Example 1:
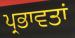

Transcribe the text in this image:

ਪ੍ਰਭਾਵਤਾਂ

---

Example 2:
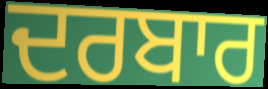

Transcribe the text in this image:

ਦਰਬਾਰ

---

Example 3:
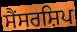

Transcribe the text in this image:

ਸੈਂਸਰਸ਼ਿਪ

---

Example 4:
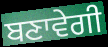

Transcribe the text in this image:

ਬਣਾਵੇਗੀ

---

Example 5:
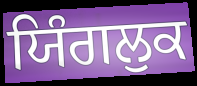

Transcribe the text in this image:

ਯਿੰਗਲੁਕ